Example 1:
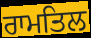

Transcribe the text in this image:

ਰਾਮਤਿਲ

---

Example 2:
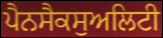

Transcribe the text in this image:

ਪੈਨਸੈਕਸੁਅਲਿਟੀ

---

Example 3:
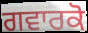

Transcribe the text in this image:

ਗਵਾਰਕੋ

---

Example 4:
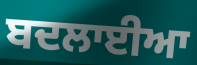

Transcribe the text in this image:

ਬਦਲਾਈਆ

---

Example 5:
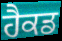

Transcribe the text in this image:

ਹੈਕਡ